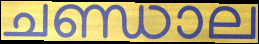
ചണ്ഡാല